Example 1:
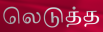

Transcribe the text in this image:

லெடுத்த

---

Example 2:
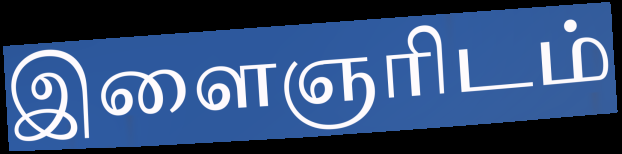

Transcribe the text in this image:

இளைஞரிடம்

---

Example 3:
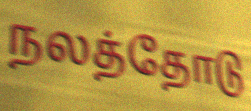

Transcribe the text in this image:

நலத்தோடு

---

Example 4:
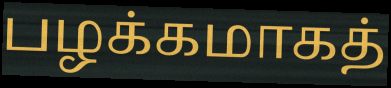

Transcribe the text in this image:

பழக்கமாகத்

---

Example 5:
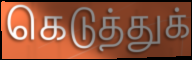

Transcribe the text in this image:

கெடுத்துக்